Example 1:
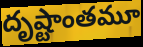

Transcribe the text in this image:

దృష్టాంతమూ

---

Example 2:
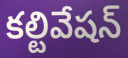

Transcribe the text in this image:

కల్టివేషన్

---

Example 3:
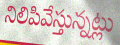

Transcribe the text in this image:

నిలిపివేస్తున్నట్లు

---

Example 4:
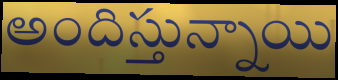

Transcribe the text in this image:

అందిస్తున్నాయి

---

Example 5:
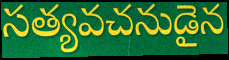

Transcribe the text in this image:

సత్యవచనుడైన